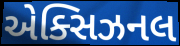
એક્સિઝનલ